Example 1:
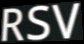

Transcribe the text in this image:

RSV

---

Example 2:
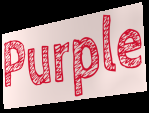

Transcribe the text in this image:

Purple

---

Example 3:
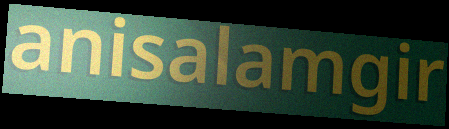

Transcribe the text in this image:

anisalamgir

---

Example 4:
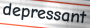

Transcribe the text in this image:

depressant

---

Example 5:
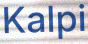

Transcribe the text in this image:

Kalpi